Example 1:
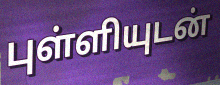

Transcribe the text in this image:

புள்ளியுடன்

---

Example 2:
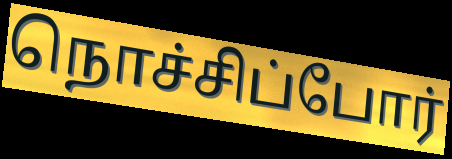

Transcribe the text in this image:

நொச்சிப்போர்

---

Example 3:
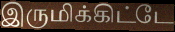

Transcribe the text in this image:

இருமிக்கிட்டே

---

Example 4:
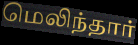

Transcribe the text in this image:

மெலிந்தார்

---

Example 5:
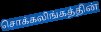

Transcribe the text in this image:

சொக்கலிங்கத்தின்